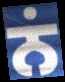
ਨਂ